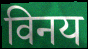
विनय